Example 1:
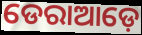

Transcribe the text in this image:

ଡେରାଆଡ଼େ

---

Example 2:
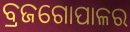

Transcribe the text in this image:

ବ୍ରଜଗୋପାଳର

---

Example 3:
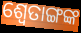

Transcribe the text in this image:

ଶ୍ବେତାଙ୍ଗଙ୍କ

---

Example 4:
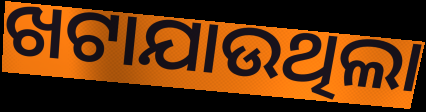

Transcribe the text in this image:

ଖଟାଯାଉଥିଲା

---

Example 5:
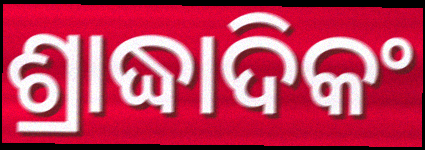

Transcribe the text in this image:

ଶ୍ରାଦ୍ଧାଦିକଂ